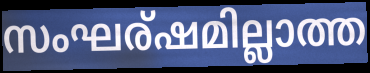
സംഘര്ഷമില്ലാത്ത